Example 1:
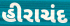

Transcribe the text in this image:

હીરાચંદ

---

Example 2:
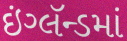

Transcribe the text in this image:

ઇંગ્લૅન્ડમાં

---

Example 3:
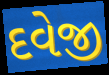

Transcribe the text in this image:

દવેજી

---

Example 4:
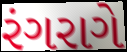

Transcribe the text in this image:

રંગરાગે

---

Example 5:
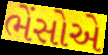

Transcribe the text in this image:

ભેંસોએ